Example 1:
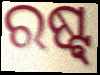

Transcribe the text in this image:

ରଷ୍ଟ୍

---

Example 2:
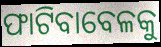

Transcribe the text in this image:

ଫାଟିବାବେଳକୁ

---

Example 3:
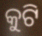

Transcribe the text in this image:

କୁଟି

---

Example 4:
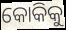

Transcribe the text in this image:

କୋକିକୁ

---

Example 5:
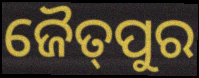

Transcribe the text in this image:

ଜୈତ୍‌ପୁର